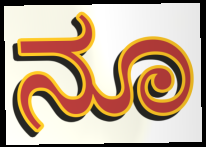
ನೂ